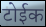
टोईक